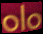
olo